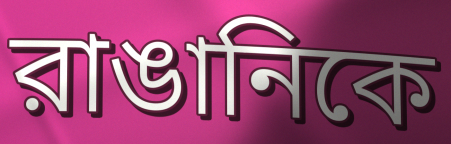
রাঙানিকে